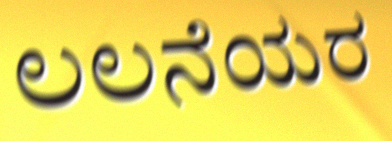
ಲಲನೆಯರ